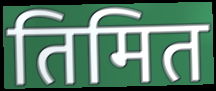
तिमित